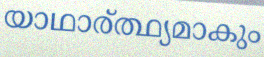
യാഥാര്ത്ഥ്യമാകും